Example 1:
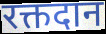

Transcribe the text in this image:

रक्तदान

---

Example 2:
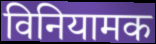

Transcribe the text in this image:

विनियामक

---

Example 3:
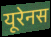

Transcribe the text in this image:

यूरेनस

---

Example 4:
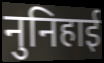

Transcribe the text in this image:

नुनिहाई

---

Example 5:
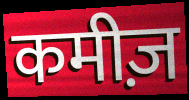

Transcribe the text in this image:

कमीज़